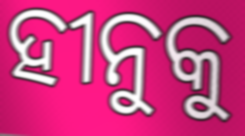
ହୀନୁକୁ